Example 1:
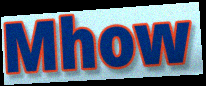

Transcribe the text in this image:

Mhow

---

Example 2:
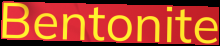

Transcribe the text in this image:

Bentonite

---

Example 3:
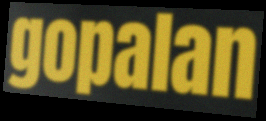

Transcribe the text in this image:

gopalan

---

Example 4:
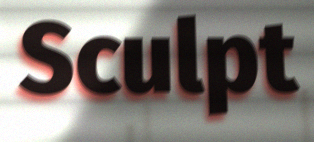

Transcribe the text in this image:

Sculpt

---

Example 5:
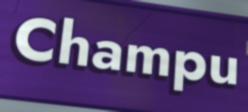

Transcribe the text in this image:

Champu